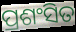
ପ୍ରଶଂସିତ